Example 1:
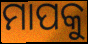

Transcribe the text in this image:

ମାପକୁ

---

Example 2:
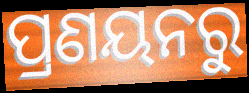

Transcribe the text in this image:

ପ୍ରଣୟନରୁ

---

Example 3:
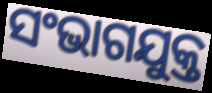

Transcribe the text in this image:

ସଂଭାଗଯୁକ୍ତ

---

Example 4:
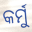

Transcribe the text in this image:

କର୍ମୁ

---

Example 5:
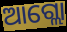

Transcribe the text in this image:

ଆଗ୍ଲୋ